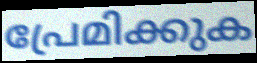
പ്രേമിക്കുക